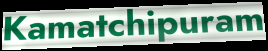
Kamatchipuram